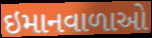
ઇમાનવાળાઓ